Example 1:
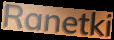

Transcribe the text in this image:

Ranetki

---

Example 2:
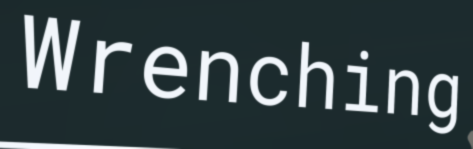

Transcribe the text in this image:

Wrenching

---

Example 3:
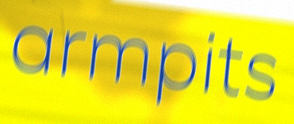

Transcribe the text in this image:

armpits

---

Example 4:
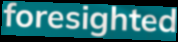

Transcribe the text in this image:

foresighted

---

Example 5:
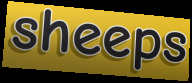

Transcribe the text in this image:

sheeps